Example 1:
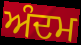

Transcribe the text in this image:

ਅੰਦਮ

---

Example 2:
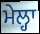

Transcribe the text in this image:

ਮੇਲ੍ਹਾ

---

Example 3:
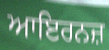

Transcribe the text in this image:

ਆਇਰਨਜ਼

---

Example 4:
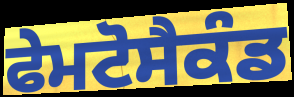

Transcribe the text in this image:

ਫੇਮਟੋਸੈਕੰਡ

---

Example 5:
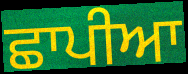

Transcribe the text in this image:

ਛਾਪੀਆ